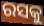
ରସକୁ